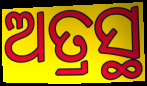
ଅତ୍ରସ୍ଥ